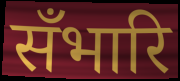
सँभारि